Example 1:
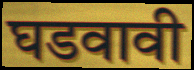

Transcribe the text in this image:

घडवावी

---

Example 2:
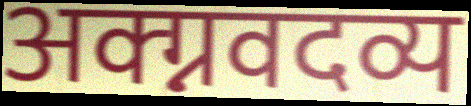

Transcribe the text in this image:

अक्ग्नवदव्य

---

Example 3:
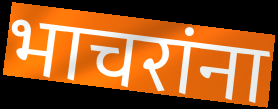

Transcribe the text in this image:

भाचरांना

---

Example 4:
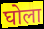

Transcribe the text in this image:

घोला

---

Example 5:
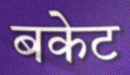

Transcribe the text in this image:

बकेट